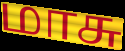
மாசு